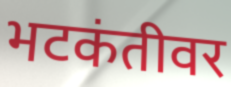
भटकंतीवर